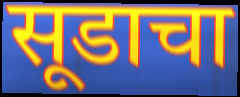
सूडाचा